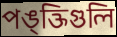
পঙ্‌ক্তিগুলি